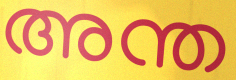
അന്ത